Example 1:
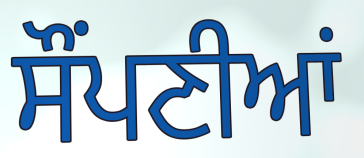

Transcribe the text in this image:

ਸੌਂਪਣੀਆਂ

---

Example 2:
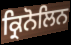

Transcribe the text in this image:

ਕ੍ਰਿਨੋਲਿਨ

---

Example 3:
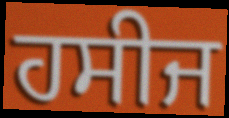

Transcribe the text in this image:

ਹਸੀਜ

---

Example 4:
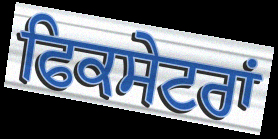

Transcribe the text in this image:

ਫਿਕਸੇਟਰਾਂ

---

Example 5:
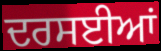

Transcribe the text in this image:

ਦਰਸਈਆਂ